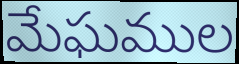
మేఘముల